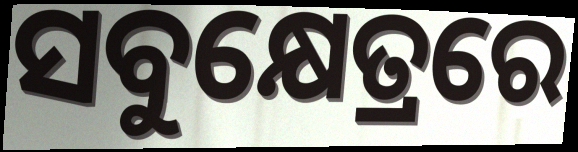
ସବୁକ୍ଷେତ୍ରରେ